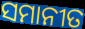
ସମାନୀତ